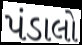
પંડાલો